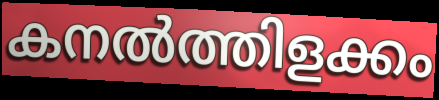
കനൽത്തിളക്കം